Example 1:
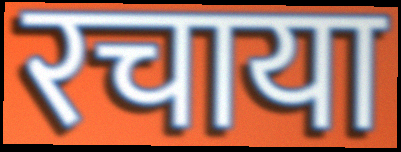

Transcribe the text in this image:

रचाया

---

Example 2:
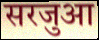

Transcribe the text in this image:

सरजुआ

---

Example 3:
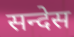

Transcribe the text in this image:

सन्देस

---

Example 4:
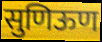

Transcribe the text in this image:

सुणिऊण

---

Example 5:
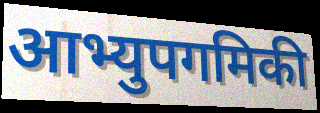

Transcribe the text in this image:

आभ्युपगमिकी